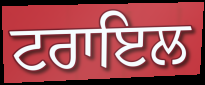
ਟਰਾਇਲ